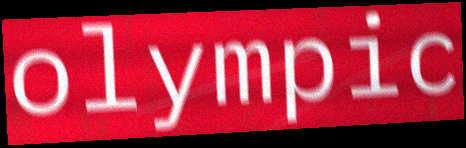
olympic